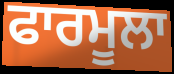
ਫਾਰਮੂਲਾ